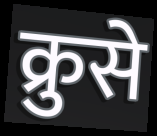
क्रुसे